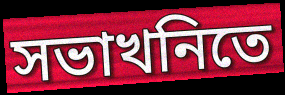
সভাখনিতে